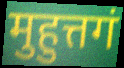
मुहुत्तगं